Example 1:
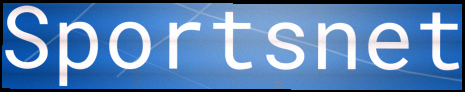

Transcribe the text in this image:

Sportsnet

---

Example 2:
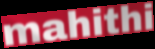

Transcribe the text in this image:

mahithi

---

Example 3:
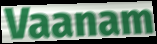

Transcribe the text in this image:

Vaanam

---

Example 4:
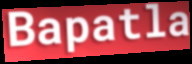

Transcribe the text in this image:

Bapatla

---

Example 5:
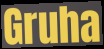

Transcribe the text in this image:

Gruha